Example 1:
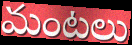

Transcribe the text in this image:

మంటలు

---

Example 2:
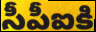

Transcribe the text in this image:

సీపీఐకి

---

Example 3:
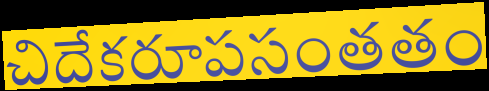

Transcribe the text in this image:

చిదేకరూపసంతతం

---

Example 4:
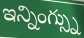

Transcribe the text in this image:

ఇన్నింగ్స్ను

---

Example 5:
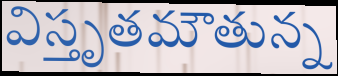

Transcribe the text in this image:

విస్తృతమౌతున్న